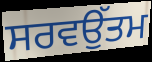
ਸਰਵਉੱਤਮ